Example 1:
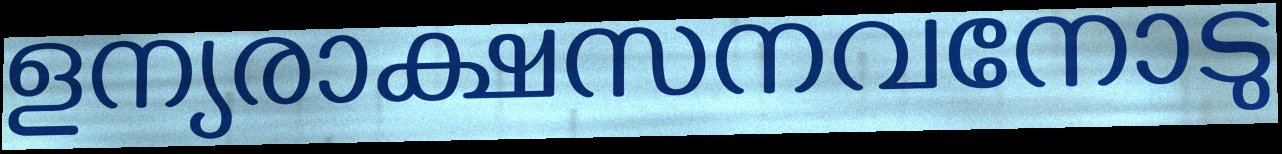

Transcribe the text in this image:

ളന്യരാക്ഷസനവനോടു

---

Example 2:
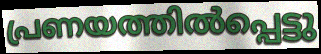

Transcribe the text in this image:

പ്രണയത്തിൽപ്പെട്ടു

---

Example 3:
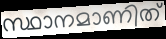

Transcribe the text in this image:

സ്ഥാനമാണിത്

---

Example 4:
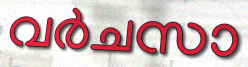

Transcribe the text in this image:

വർചസാ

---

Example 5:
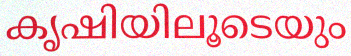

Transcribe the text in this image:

കൃഷിയിലൂടെയും